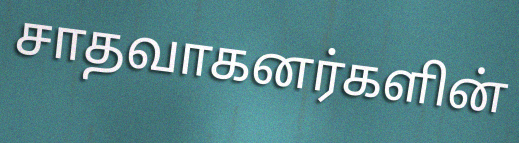
சாதவாகனர்களின்